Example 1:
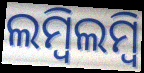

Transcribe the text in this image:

ଲମ୍ବିଲମ୍ବି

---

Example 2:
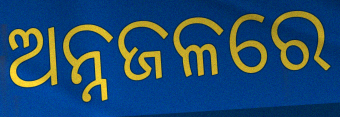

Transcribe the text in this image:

ଅନ୍ନଜଳରେ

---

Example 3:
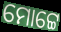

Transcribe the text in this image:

ମୋଟ୍ଟେ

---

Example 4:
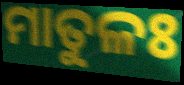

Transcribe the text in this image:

ମାତୁଳଃ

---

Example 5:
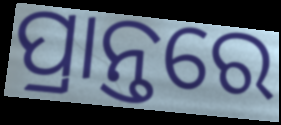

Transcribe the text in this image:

ପ୍ରାନ୍ତରେ